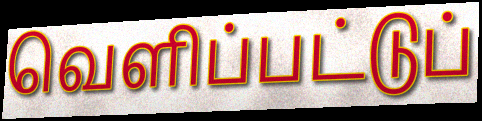
வெளிப்பட்டுப்